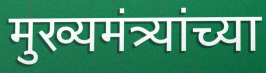
मुख्यमंत्र्यांच्या